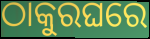
ଠାକୁରଘରେ